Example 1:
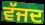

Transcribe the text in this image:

ਵੱਜਦ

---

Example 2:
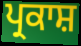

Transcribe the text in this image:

ਪ੍ਰਕਾਸ਼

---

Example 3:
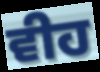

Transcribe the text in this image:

ਵੀਹ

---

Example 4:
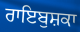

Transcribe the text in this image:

ਰਾਇਬੁਸ਼ਕਾ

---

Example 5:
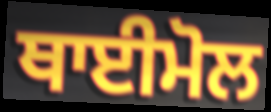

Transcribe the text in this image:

ਥਾਈਮੋਲ